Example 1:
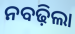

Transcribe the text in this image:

ନବଢ଼ିଲା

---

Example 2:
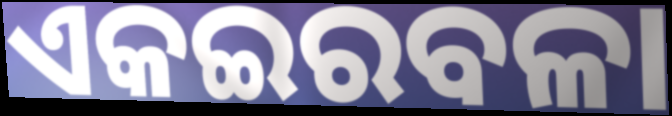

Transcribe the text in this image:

ଏକଇରବଳା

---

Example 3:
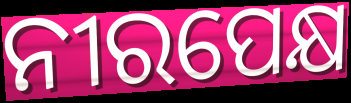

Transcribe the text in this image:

ନୀରପେକ୍ଷ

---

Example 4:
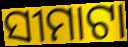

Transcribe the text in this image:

ସୀମାଟା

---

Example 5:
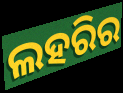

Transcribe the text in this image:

ଲହରିର